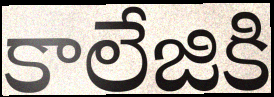
కాలేజికి